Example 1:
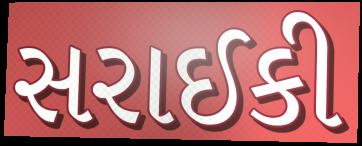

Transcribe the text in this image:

સરાઈકી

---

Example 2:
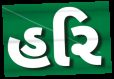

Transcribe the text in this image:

હરિ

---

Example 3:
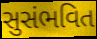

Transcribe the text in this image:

સુસંભવિત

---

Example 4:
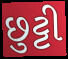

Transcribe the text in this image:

છુટ્ટી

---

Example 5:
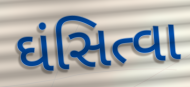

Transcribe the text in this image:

ઘંસિત્વા